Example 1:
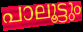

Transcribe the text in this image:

പാലൂട്ടും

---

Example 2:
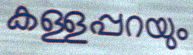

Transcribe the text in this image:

കള്ളപ്പറയും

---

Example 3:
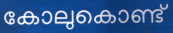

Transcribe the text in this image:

കോലുകൊണ്ട്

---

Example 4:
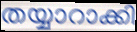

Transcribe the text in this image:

തയ്യാറാക്കി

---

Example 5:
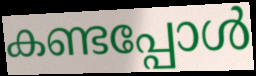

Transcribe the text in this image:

കണ്ടപ്പോൾ